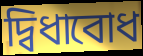
দ্বিধাবোধ